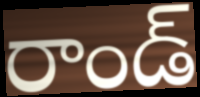
రాండ్